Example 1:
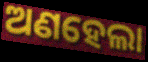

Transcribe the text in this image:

ଅଣହେଲା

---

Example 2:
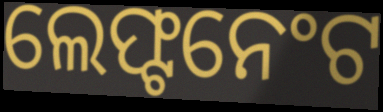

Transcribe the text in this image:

ଲେଫ୍ଟନେଂଟ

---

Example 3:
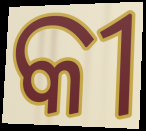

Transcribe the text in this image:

କୀ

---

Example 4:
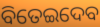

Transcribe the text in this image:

ବିତେଇଦେବ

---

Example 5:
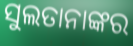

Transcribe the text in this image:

ସୁଲତାନାଙ୍କର